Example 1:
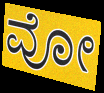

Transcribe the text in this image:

ವೋ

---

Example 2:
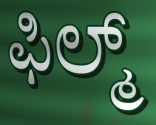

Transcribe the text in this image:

ಫಿಲ್ಮ್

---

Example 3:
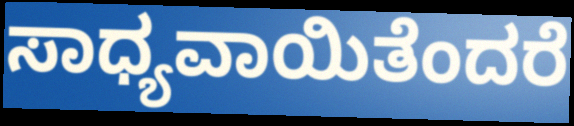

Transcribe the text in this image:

ಸಾಧ್ಯವಾಯಿತೆಂದರೆ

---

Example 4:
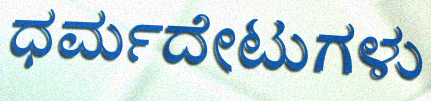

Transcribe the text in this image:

ಧರ್ಮದೇಟುಗಳು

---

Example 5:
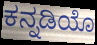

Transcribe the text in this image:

ಕನ್ನಡಿಯೊ